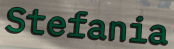
Stefania